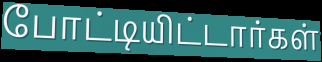
போட்டியிட்டார்கள்